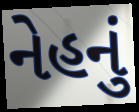
નેહનું